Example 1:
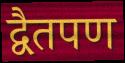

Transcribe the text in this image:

द्वैतपण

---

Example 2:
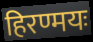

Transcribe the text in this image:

हिरण्मयः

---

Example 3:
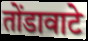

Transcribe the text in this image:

तोंडावाटे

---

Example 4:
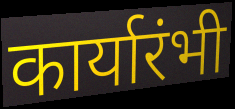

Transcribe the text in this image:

कार्यारंभी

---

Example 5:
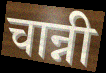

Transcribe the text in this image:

चान्नी